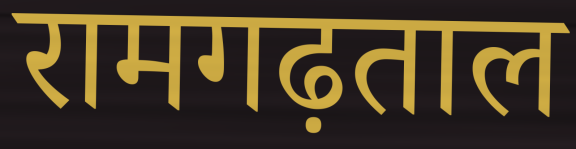
रामगढ़ताल